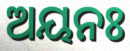
ଅୟନଃ